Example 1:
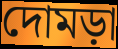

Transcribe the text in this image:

দোমড়া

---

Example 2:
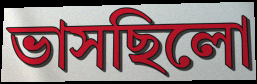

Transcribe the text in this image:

ভাসছিলো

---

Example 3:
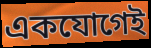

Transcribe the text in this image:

একযোগেই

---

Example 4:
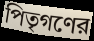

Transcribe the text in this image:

পিতৃগণের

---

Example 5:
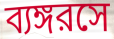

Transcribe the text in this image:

ব্যঙ্গরসে